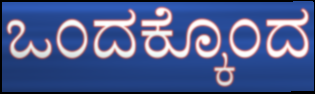
ಒಂದಕ್ಕೊಂದ